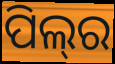
ପିଲ୍‌ର